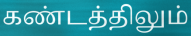
கண்டத்திலும்